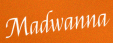
Madwanna